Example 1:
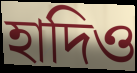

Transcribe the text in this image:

হাদিও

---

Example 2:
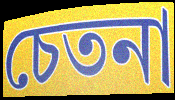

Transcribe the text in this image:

চেতনা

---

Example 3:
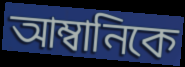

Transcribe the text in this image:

আম্বানিকে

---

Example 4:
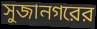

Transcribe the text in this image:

সুজানগরের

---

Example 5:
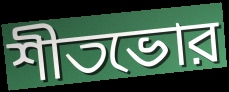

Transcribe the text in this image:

শীতভোর